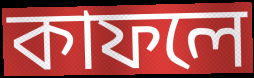
কাফলে